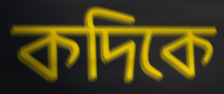
কদিকে